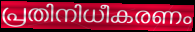
പ്രതിനിധീകരണം